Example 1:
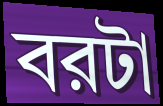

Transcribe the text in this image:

বরটা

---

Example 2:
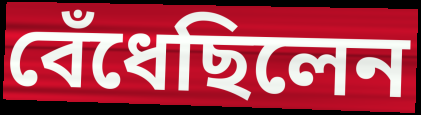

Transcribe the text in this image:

বেঁধেছিলেন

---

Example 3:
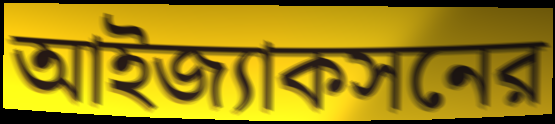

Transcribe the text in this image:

আইজ্যাকসনের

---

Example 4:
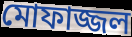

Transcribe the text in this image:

মোফাজ্জল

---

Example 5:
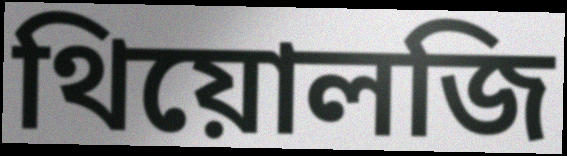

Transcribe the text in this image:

থিয়োলজি